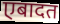
एबादत